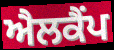
ਐਲਕੈਂਪ